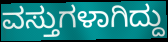
ವಸ್ತುಗಳಾಗಿದ್ದು